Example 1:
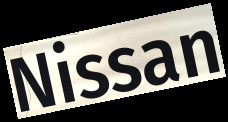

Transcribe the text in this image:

Nissan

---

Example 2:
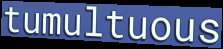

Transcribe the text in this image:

tumultuous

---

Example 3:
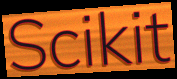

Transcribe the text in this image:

Scikit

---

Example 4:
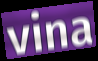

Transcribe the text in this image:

vina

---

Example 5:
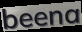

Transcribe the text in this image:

beena